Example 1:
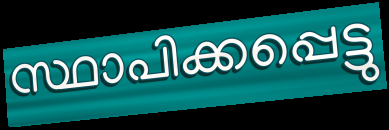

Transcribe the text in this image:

സ്ഥാപിക്കപ്പെട്ടു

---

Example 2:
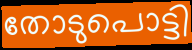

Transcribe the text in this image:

തോടുപൊട്ടി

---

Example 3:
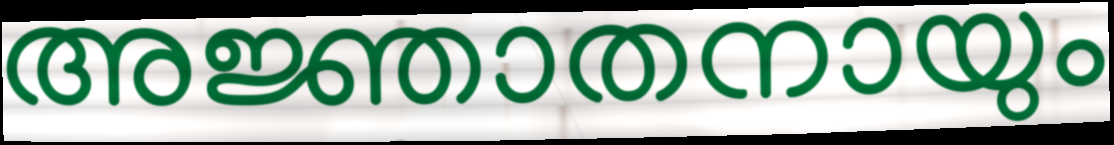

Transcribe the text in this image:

അജ്ഞാതനായും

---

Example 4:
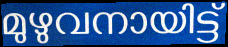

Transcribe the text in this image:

മുഴുവനായിട്ട്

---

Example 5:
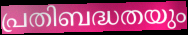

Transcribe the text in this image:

പ്രതിബദ്ധതയും